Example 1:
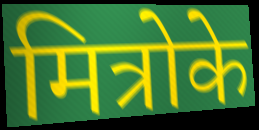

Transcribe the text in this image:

मित्रोके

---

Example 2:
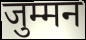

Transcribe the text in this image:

जुम्मन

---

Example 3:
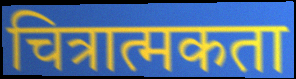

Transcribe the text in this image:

चित्रात्मकता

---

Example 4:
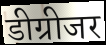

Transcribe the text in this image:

डीग्रीजर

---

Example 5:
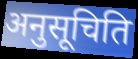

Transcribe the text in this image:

अनुसूचिति